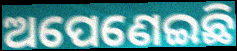
ଅପେଣେଇଛି